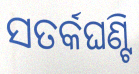
ସତର୍କଘଣ୍ଟି